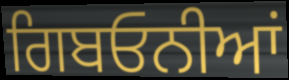
ਗਿਬਓਨੀਆਂ